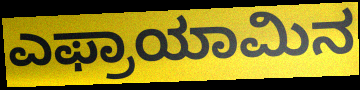
ಎಫ್ರಾಯಾಮಿನ